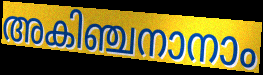
അകിഞ്ചനാനാം